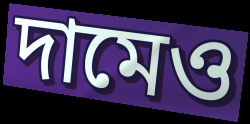
দামেও